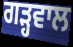
ਗੜ੍ਹਵਾਲ